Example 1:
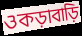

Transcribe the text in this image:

ওকড়াবাড়ি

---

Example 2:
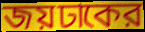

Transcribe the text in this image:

জয়ঢাকের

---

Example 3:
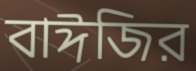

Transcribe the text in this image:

বাঈজির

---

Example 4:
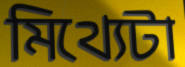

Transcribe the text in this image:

মিথ্যেটা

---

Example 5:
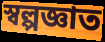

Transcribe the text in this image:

স্বল্পজ্ঞাত